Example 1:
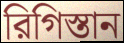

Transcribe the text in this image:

রিগিস্তান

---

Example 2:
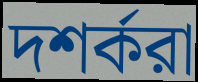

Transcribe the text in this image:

দশর্করা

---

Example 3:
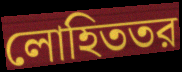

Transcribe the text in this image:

লোহিততর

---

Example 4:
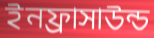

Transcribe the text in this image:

ইনফ্রাসাউন্ড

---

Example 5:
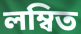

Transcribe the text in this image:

লম্বিত